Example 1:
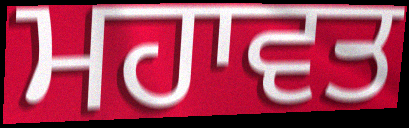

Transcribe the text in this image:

ਮਹਾਵਤ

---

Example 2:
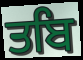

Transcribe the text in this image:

ਤਬਿ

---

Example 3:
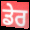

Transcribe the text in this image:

ਡੇਰ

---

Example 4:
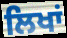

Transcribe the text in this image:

ਲਿਖਾਂ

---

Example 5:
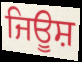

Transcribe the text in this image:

ਜਿਊਸ਼